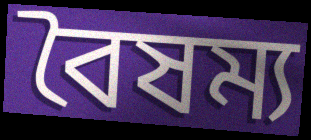
বৈষম্য